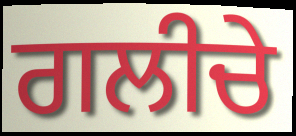
ਗਲੀਚੇ